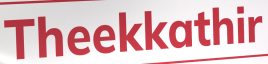
Theekkathir